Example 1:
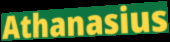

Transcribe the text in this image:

Athanasius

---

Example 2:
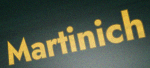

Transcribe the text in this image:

Martinich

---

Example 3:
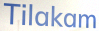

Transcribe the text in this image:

Tilakam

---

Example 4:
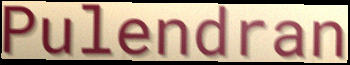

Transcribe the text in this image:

Pulendran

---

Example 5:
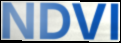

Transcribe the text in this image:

NDVI